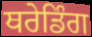
ਥਰੇਡਿੰਗ